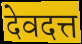
देवदत्त